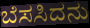
ಬೆಸಸಿದನು